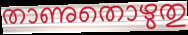
താണുതൊഴുതു